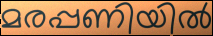
മരപ്പണിയിൽ